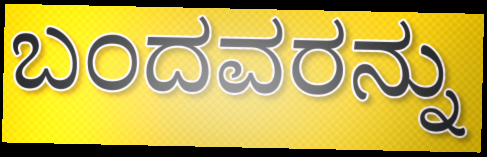
ಬಂದವರನ್ನು